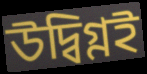
উদ্বিগ্নই